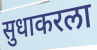
सुधाकरला